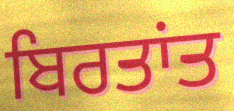
ਬਿਰਤਾਂਤ